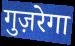
गुज़रेगा